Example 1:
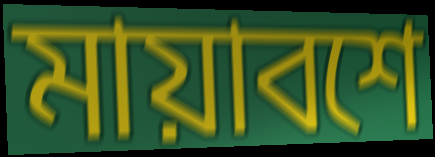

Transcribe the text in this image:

মায়াবশে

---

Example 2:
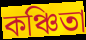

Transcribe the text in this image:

কঞ্চিতা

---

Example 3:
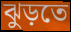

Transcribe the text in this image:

ঝুড়তে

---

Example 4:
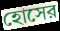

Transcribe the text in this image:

হোসের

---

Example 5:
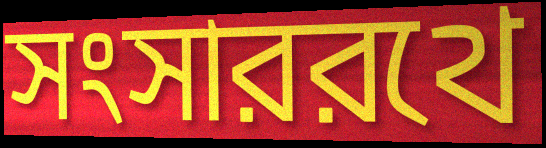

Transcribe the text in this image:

সংসাররথে